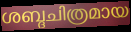
ശബ്ദചിത്രമായ